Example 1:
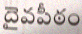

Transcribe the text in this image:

దైవపీఠం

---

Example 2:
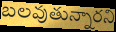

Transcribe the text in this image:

బలవుతున్నారని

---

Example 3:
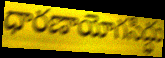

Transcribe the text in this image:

ధారణాయోగసిద్ధు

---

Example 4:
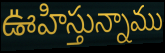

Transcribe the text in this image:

ఊహిస్తున్నాము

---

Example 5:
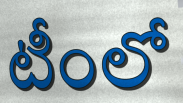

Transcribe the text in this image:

టీంలో